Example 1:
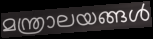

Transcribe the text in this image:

മന്ത്രാലയങ്ങൾ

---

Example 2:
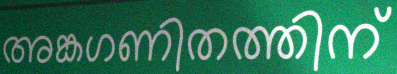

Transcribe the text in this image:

അങ്കഗണിതത്തിന്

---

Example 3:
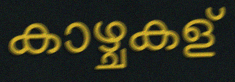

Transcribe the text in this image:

കാഴ്ചകള്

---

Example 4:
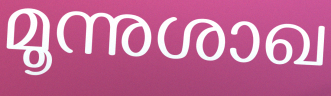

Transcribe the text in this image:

മൂന്നുശാഖ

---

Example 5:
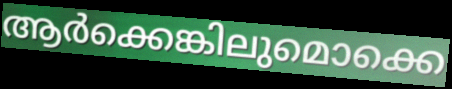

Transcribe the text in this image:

ആർക്കെങ്കിലുമൊക്കെ